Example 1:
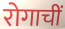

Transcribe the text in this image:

रोगाचीं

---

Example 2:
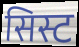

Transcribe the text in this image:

सिस्ट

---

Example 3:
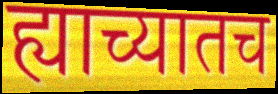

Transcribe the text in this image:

ह्याच्यातच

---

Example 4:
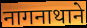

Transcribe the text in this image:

नागनाथाने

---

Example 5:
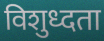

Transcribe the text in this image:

विशुध्दता